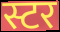
स्टर